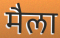
मैला